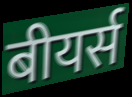
बीयर्स